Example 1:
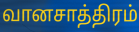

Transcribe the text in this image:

வானசாத்திரம்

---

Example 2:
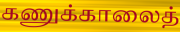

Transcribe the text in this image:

கணுக்காலைத்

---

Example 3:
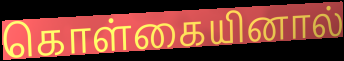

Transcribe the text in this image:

கொள்கையினால்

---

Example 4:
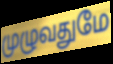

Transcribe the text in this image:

முழுவதுமே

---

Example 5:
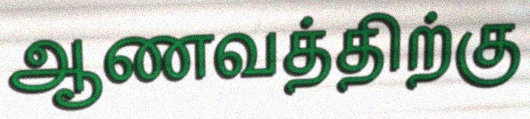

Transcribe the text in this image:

ஆணவத்திற்கு